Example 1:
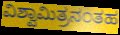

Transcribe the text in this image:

ವಿಶ್ವಾಮಿತ್ರನಂತಹ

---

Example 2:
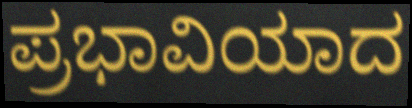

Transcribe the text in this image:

ಪ್ರಭಾವಿಯಾದ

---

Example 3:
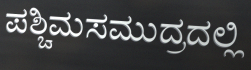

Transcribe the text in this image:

ಪಶ್ಚಿಮಸಮುದ್ರದಲ್ಲಿ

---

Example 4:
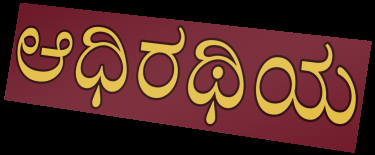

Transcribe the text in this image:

ಆಧಿರಥಿಯ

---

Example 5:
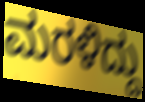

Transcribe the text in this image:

ಮರಳಿದ್ದು